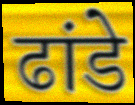
ढांडे